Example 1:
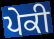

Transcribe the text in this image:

ਪੇਕੀ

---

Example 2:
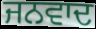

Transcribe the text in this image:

ਜਨਵਾਦ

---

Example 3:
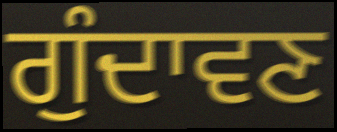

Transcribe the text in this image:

ਗੁੰਦਾਵਣ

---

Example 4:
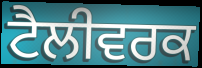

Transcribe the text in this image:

ਟੈਲੀਵਰਕ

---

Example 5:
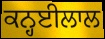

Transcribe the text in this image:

ਕਨ੍ਹਈਲਾਲ